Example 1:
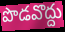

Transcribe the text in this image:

పొడవొద్దు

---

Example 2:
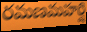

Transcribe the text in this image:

రమణమహర్షి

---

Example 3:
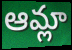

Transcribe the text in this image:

ఆమ్లా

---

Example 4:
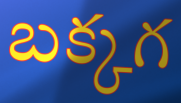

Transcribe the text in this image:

బక్కగ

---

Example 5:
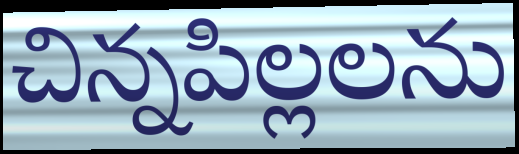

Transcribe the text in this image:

చిన్నపిల్లలను